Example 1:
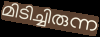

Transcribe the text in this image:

മിടിച്ചിരുന്ന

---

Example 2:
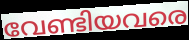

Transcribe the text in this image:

വേണ്ടിയവരെ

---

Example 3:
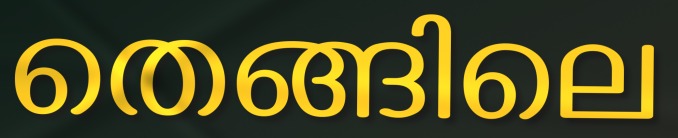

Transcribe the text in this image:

തെങ്ങിലെ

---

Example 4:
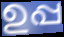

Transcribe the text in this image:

ഉപ്പ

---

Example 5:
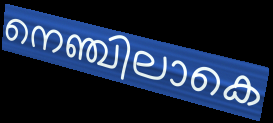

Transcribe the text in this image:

നെഞ്ചിലാകെ